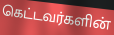
கெட்டவர்களின்